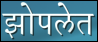
झोपलेत